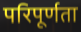
परिपूर्णता